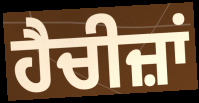
ਹੈਚੀਜ਼ਾਂ